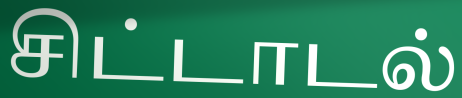
சிட்டாடல்